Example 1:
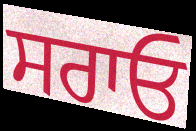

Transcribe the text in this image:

ਸਰਾਓ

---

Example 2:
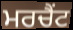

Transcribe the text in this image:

ਮਰਚੈਂਟ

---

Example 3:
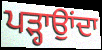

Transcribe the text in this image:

ਪੜ੍ਹਾਉਾਂਦਾ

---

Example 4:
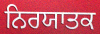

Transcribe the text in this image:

ਨਿਰਯਾਤਕ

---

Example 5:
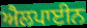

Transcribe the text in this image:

ਐਲਪਾਈਨ